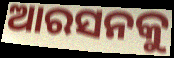
ଆରସନକୁ